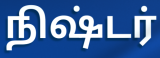
நிஷ்டர்